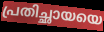
പ്രതിച്ഛായയെ